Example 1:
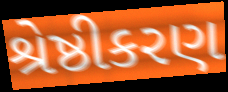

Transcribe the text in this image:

શ્રેષ્ઠીકરણ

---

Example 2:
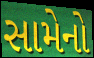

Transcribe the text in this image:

સામેનો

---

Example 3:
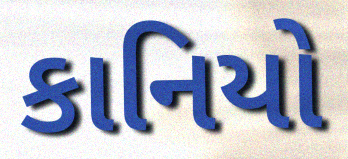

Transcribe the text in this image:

કાનિયો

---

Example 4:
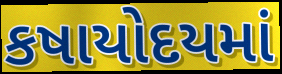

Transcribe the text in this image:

કષાયોદયમાં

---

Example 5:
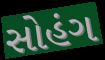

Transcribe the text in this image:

સોહંગ